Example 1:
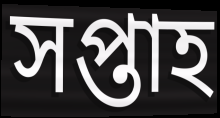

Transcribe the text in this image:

সপ্তাহ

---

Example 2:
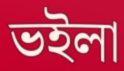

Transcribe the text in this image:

ভইলা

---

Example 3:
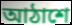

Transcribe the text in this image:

আঠাশে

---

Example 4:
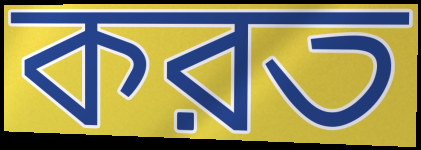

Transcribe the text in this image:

করত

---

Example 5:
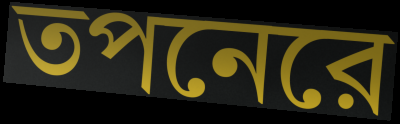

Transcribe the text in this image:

তপনেরে